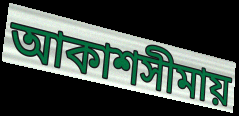
আকাশসীমায়